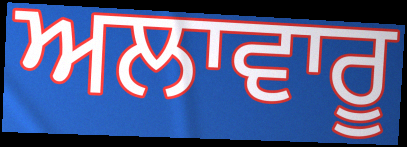
ਅਲਾਵਾਰੂ